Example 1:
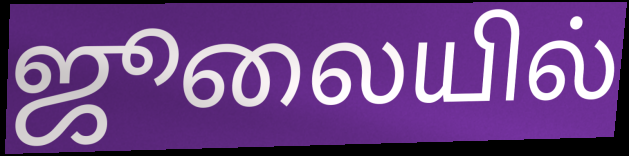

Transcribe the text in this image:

ஜூலையில்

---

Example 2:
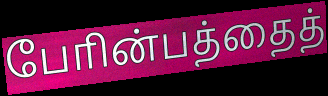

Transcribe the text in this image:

பேரின்பத்தைத்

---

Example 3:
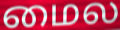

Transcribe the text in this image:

மைல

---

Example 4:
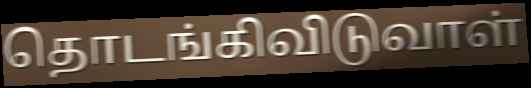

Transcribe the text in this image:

தொடங்கிவிடுவாள்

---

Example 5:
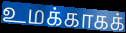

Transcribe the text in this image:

உமக்காகக்